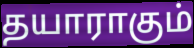
தயாராகும்